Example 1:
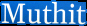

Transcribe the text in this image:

Muthit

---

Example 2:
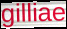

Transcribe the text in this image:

gilliae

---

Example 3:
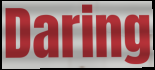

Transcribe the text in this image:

Daring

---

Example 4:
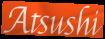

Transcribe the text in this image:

Atsushi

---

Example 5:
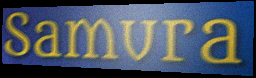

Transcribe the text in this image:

Samura